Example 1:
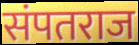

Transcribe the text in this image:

संपतराज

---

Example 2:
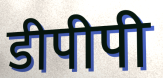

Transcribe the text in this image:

डीपीपी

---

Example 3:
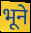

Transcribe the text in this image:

भूने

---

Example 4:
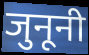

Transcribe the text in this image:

जुनूनी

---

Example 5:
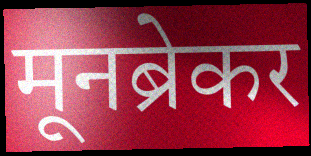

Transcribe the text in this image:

मूनब्रेकर